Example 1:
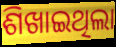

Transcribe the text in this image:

ଶିଖାଇଥିଲା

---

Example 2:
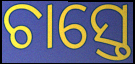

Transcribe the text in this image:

ଚାସ୍ତେ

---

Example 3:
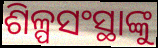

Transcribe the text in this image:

ଶିଳ୍ପସଂସ୍ଥାଙ୍କୁ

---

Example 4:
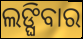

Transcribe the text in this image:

ଲଙ୍ଘିବାର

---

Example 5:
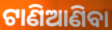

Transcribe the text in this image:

ଟାଣିଆଣିବା